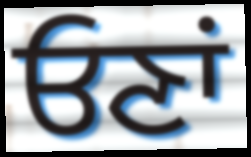
ਓਣਾਂ